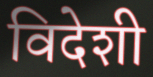
विदेशी